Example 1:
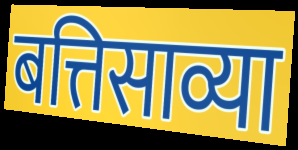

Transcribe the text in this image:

बत्तिसाव्या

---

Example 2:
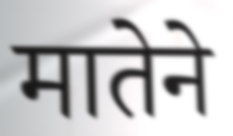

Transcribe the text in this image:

मातेने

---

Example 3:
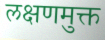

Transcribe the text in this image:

लक्षणमुक्त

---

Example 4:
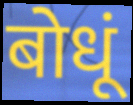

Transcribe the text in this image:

बोधूं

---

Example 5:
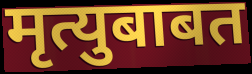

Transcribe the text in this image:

मृत्युबाबत